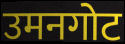
उमनगोट